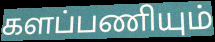
களப்பணியும்